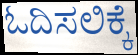
ಓದಿಸಲಿಕ್ಕೆ